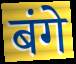
बंगे